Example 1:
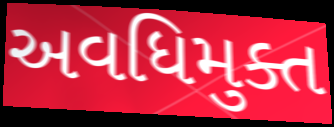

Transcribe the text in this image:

અવધિમુક્ત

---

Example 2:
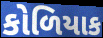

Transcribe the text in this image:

કોળિયાક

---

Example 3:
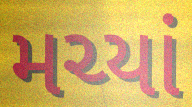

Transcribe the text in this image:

મચ્યાં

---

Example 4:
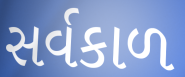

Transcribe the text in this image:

સર્વકાળ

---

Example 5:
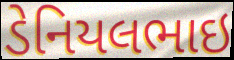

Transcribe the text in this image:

ડેનિયલભાઇ